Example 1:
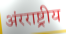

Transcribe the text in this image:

अंरराष्ट्रीय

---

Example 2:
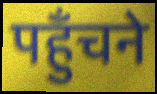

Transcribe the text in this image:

पहुंँचने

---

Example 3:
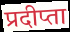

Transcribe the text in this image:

प्रदीप्ता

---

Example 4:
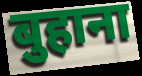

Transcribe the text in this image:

बुहाना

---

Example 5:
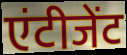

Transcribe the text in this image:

एंटीजेंट